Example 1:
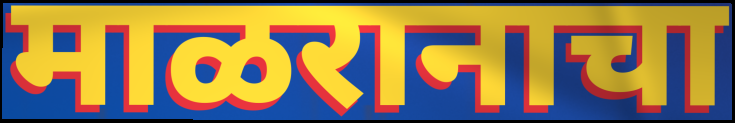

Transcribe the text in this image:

माळरानाचा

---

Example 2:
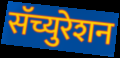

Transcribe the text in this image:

सॅच्युरेशन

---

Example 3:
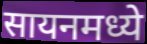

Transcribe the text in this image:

सायनमध्ये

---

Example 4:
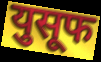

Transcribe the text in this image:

युसूफ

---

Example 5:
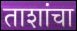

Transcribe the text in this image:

ताशांचा